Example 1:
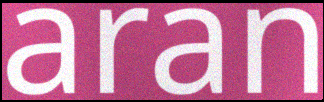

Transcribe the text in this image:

aran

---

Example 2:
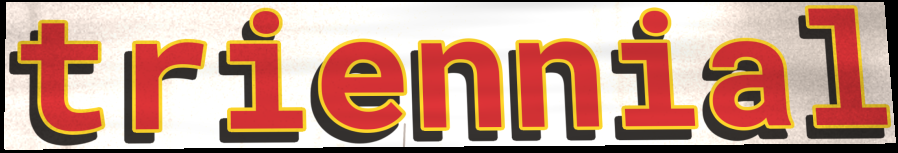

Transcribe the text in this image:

triennial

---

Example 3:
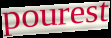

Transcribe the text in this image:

pourest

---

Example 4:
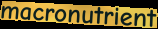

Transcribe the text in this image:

macronutrient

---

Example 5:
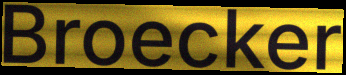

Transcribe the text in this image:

Broecker